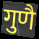
गुणै